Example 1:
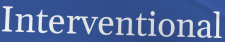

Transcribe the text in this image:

Interventional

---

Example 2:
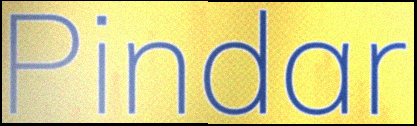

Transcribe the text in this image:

Pindar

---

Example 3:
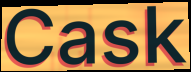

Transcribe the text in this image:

Cask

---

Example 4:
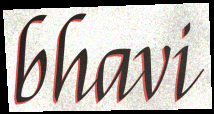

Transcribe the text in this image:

bhavi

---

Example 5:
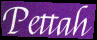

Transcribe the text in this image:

Pettah